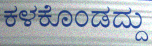
ಕಳಕೊಂಡದ್ದು